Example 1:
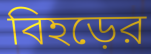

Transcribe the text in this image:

বিহড়ের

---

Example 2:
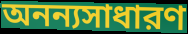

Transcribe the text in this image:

অনন্যসাধারণ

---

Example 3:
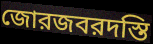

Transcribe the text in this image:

জোরজবরদস্তি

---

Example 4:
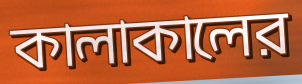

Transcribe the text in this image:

কালাকালের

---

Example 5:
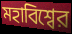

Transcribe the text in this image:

মহাবিশ্বের